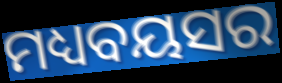
ମଧ୍ୟବୟସର